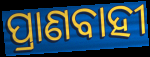
ପ୍ରାଣବାହୀ